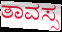
ತಾವಸ್ಸ